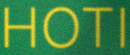
HOTI